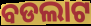
ବଡଲାଟ